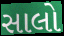
સાલો